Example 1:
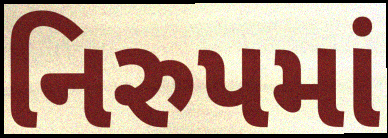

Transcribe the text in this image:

નિરુપમાં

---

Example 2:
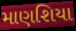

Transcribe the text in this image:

માણશિયા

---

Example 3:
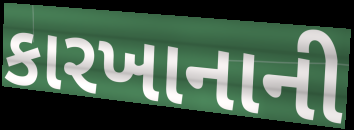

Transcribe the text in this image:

કારખાનાની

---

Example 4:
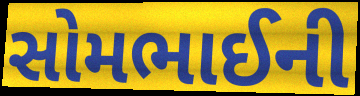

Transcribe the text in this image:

સોમભાઈની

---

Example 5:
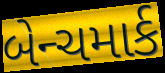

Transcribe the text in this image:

બેન્ચમાર્ક